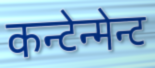
कन्टेन्मेन्ट